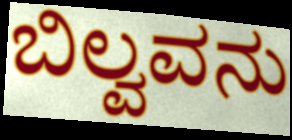
ಬಿಲ್ವವನು